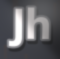
Jh